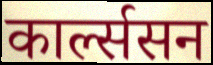
कार्ल्ससन